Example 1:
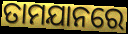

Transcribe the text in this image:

ତାମଯାନରେ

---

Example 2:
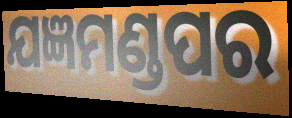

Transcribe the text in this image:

ଯଜ୍ଞମଣ୍ଡପର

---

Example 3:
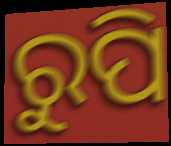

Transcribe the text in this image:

ରୁପି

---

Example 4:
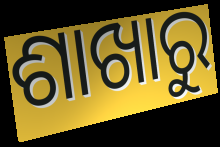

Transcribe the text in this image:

ଶାଖାରୁ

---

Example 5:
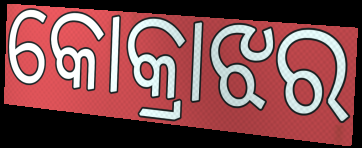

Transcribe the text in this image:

କୋକ୍ରାଝର